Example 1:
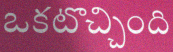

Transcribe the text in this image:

ఒకటొచ్చింది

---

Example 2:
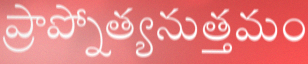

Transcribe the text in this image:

ప్రాప్నోత్యనుత్తమం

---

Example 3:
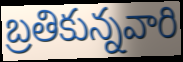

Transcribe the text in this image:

బ్రతికున్నవారి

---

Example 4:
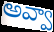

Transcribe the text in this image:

అవ్వా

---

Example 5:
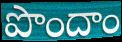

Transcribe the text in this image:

పొందాం